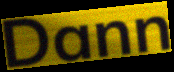
Dann